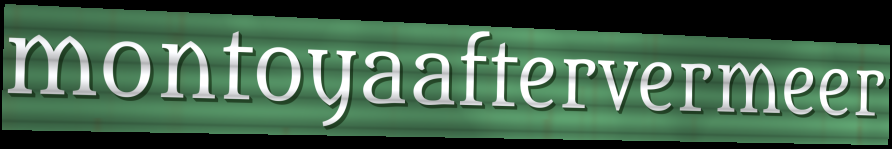
montoyaaftervermeer